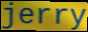
jerry